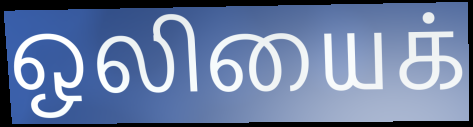
ஒலியைக்